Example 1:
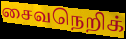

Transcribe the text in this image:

சைவநெறிக்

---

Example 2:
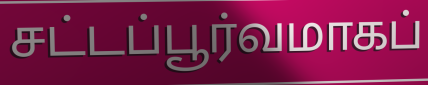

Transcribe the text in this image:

சட்டப்பூர்வமாகப்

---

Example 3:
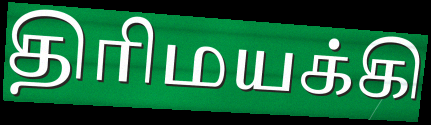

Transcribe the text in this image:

திரிமயக்கி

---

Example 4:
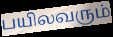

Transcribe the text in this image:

பயிலவரும்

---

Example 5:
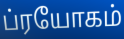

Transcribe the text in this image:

ப்ரயோகம்